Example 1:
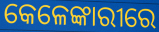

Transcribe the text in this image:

କେଳେଙ୍କାରୀରେ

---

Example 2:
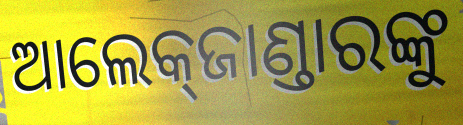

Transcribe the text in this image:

ଆଲେକ୍‌ଜାଣ୍ଡାରଙ୍କୁ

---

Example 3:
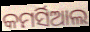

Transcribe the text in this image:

କମର୍ସିଆଲ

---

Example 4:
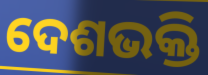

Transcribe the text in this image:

ଦେଶଭକ୍ତି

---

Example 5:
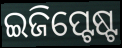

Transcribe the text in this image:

ଇଜିପ୍ଟେଷ୍ଟ